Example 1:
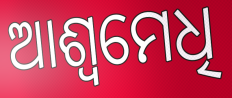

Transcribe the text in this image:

ଆଶ୍ୱମେଧି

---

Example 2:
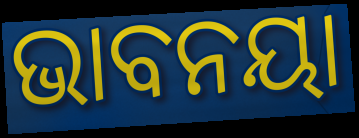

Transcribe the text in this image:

ଭାବନୟା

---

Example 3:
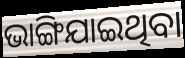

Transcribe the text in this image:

ଭାଙ୍ଗିଯାଇଥିବା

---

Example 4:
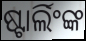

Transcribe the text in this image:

ଷ୍ଟାର୍ଲିଂଙ୍କ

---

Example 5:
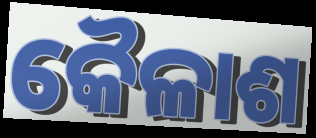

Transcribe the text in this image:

କୈଳାଶ